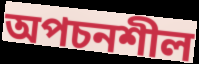
অপচনশীল